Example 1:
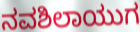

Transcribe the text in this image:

ನವಶಿಲಾಯುಗ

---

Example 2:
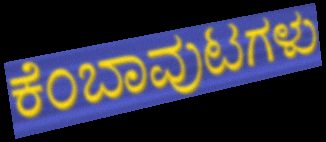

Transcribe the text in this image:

ಕೆಂಬಾವುಟಗಳು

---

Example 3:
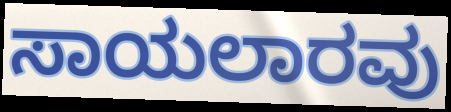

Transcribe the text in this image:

ಸಾಯಲಾರವು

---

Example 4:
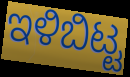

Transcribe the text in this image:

ಇಳಿಬಿಟ್ಟ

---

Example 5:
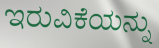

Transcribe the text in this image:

ಇರುವಿಕೆಯನ್ನು